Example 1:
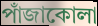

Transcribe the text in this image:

পাঁজাকোলা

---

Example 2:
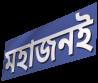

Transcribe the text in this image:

মহাজনই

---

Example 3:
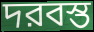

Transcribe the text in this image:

দরবস্ত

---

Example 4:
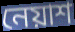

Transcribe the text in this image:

নেয়াশ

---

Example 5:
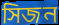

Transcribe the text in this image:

সিজন